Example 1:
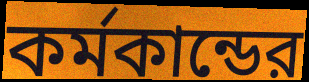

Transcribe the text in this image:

কর্মকান্ডের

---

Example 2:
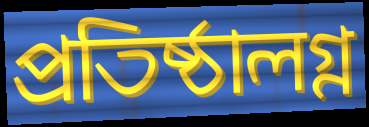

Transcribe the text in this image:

প্রতিষ্ঠালগ্ন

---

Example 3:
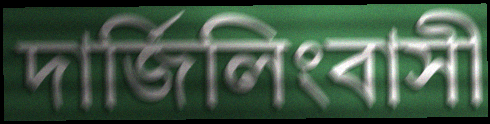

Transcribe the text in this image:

দার্জিলিংবাসী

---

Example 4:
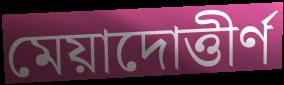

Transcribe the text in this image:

মেয়াদোত্তীর্ণ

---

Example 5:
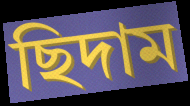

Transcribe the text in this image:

ছিদাম